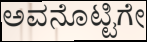
ಅವನೊಟ್ಟಿಗೇ